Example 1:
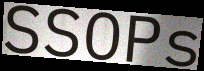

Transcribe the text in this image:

SSOPs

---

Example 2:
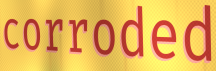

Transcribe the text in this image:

corroded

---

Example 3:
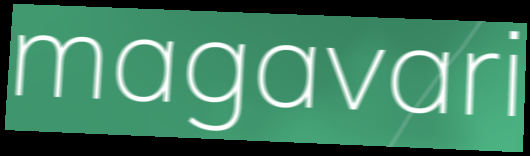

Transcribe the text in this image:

magavari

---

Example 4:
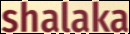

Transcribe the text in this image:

shalaka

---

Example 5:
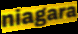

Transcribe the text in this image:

niagara